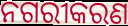
ନଗରୀକରଣ